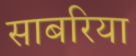
साबरिया